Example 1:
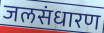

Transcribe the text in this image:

जलसंधारण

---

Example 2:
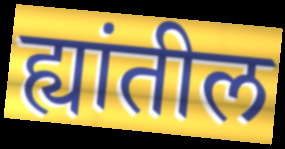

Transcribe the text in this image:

ह्यांतील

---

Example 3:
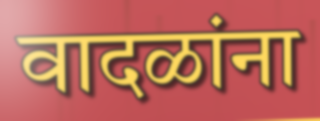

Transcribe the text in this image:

वादळांना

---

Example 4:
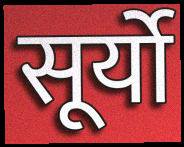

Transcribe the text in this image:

सूर्यो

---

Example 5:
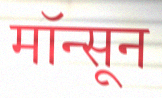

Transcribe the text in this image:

मॉन्सून